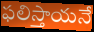
ఫలిస్తాయనే